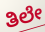
ತಿಲೇ